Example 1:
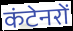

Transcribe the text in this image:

कंटेनरों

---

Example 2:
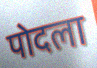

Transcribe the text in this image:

पोदला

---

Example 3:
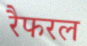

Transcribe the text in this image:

रैफरल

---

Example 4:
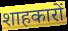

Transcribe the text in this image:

शाहकारों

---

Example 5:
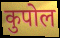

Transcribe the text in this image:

कुपोल